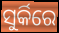
ସୁର୍କିରେ